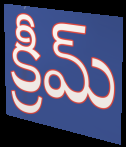
క్రీమ్